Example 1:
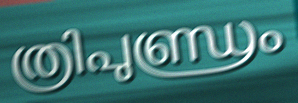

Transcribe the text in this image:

ത്രിപുണ്ഡ്രം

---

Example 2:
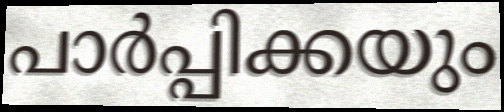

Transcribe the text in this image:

പാർപ്പിക്കയും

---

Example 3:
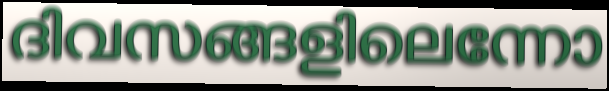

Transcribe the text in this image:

ദിവസങ്ങളിലെന്നോ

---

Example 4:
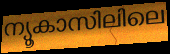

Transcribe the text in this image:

ന്യൂകാസിലിലെ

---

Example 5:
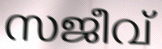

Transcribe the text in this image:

സജീവ്